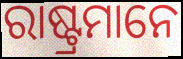
ରାଷ୍ଟ୍ରମାନେ